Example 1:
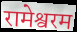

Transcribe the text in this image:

रामेश्वरम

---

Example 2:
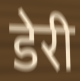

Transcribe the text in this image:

डेरी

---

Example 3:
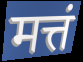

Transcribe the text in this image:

मत्तं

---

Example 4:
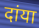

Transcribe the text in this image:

दांया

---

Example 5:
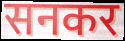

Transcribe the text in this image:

सनकर